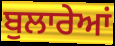
ਬੁਲਾਰੇਆਂ